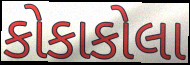
કોકાકોલા